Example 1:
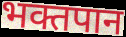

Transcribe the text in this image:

भक्तपान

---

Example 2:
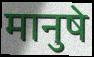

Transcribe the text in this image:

मानुषे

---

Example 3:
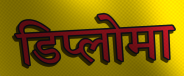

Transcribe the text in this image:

डिप्‍लोमा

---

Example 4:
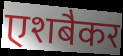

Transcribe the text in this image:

एशबैकर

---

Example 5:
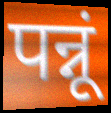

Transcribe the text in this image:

पन्नूं